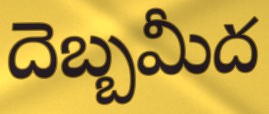
దెబ్బమీద